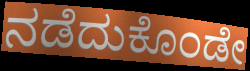
ನಡೆದುಕೊಂಡೇ